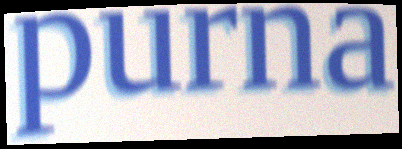
purna